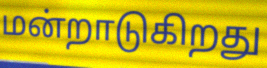
மன்றாடுகிறது